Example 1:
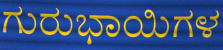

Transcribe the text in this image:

ಗುರುಭಾಯಿಗಳ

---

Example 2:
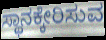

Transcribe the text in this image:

ಸ್ಥಾನಕ್ಕೇರಿಸುವ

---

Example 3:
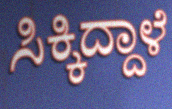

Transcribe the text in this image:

ಸಿಕ್ಕಿದ್ದಾಳೆ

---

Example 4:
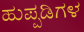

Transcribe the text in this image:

ಹುಪ್ಪಡಿಗಳ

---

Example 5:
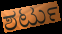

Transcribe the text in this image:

ಶರ್ಟು